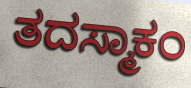
ತದಸ್ಮಾಕಂ